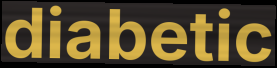
diabetic